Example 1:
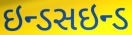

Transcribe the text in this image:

ઇન્ડસઇન્ડ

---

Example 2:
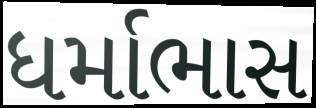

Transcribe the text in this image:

ધર્માભાસ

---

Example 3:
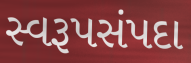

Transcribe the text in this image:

સ્વરૂપસંપદા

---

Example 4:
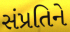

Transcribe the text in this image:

સંપ્રતિને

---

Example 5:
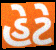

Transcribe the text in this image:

હેટે